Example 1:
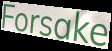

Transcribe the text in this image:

Forsake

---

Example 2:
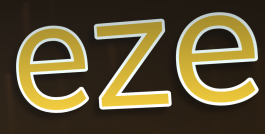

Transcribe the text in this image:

eze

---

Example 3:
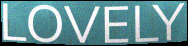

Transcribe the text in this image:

LOVELY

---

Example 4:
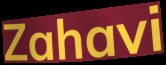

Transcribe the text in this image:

Zahavi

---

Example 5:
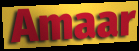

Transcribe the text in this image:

Amaar